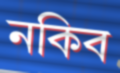
নকিব